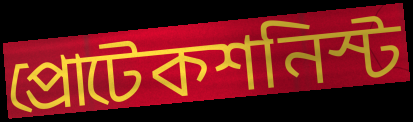
প্রোটেকশনিস্ট